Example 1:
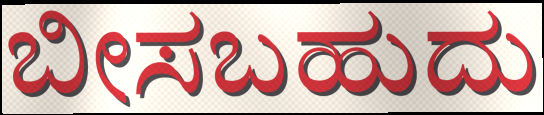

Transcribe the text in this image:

ಬೀಸಬಹುದು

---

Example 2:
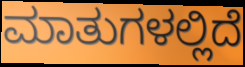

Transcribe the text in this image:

ಮಾತುಗಳಲ್ಲಿದೆ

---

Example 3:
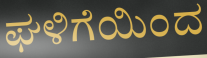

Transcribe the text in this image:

ಘಳಿಗೆಯಿಂದ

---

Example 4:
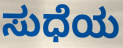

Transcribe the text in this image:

ಸುಧೆಯ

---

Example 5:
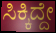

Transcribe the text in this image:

ಸಿಕ್ಕಿದ್ದೇ